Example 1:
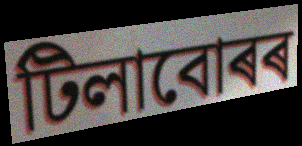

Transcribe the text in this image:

টিলাবোৰৰ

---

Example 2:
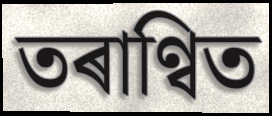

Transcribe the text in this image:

তৰাণ্বিত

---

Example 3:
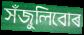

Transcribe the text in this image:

সঁজুলিবোৰ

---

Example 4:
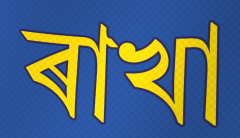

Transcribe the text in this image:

ৰাখা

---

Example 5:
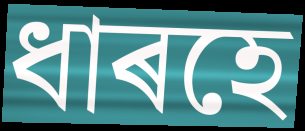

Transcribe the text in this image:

ধাৰহে